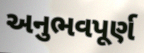
અનુભવપૂર્ણ